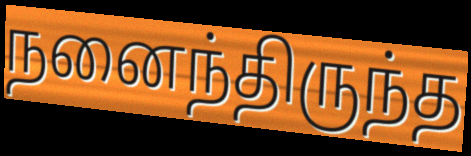
நனைந்திருந்த